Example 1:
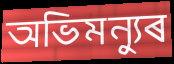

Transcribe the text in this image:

অভিমন্যুৰ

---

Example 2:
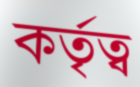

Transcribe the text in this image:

কৰ্তৃত্ব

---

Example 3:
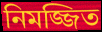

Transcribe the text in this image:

নিমজ্জিত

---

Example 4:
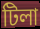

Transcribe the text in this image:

টিলা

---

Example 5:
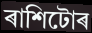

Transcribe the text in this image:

ৰাশিটোৰ